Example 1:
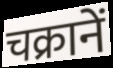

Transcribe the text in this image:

चक्रानें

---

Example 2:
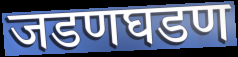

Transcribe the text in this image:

जडणघडण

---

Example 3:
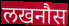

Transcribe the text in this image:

लखनौस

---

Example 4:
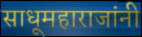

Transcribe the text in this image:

साधूमहाराजांनी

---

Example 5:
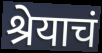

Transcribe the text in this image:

श्रेयाचं